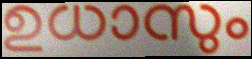
ഉധാസും